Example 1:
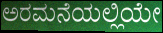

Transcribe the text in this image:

ಅರಮನೆಯಲ್ಲಿಯೇ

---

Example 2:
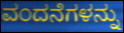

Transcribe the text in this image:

ವಂದನೆಗಳನ್ನು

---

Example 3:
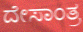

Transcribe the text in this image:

ದೇಸಾಂತ್ರ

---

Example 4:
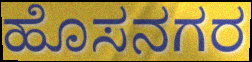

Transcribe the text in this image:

ಹೊಸನಗರ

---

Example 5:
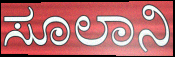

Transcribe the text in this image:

ಸೂಲಾನಿ